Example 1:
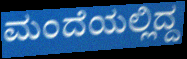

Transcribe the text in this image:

ಮಂದೆಯಲ್ಲಿದ್ದ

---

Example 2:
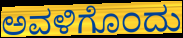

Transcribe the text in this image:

ಅವಳಿಗೊಂದು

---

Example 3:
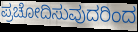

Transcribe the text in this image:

ಪ್ರಚೋದಿಸುವುದರಿಂದ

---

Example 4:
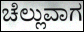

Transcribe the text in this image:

ಚೆಲ್ಲುವಾಗ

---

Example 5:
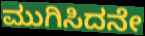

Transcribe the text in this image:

ಮುಗಿಸಿದನೇ